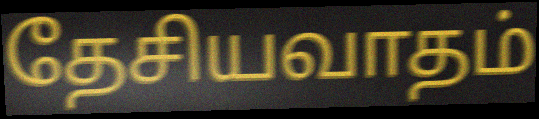
தேசியவாதம்